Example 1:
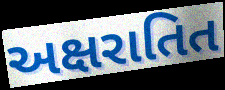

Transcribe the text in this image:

અક્ષરાતિત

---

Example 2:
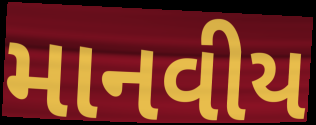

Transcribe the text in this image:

માનવીય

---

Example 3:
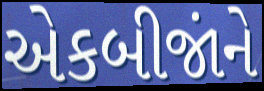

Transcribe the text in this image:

એકબીજાંને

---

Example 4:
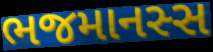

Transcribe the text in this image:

ભજમાનસ્સ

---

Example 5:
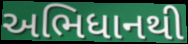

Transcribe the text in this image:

અભિધાનથી